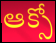
ఆక్సో